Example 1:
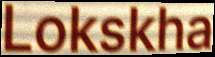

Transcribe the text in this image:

Lokskha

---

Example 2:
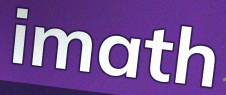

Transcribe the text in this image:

imath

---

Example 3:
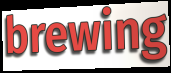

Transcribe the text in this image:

brewing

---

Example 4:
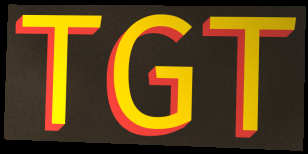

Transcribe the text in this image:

TGT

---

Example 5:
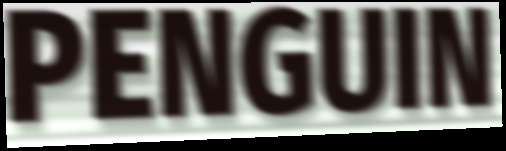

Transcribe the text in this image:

PENGUIN